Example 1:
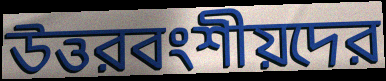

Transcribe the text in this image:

উত্তরবংশীয়দের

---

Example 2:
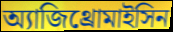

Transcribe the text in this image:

অ্যাজিথ্রোমাইসিন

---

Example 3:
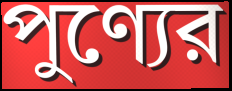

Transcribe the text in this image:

পুণ্যের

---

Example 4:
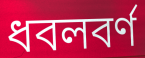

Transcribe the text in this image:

ধবলবর্ণ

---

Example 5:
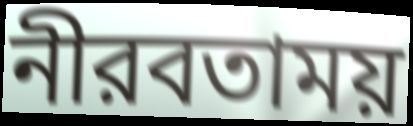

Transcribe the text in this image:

নীরবতাময়